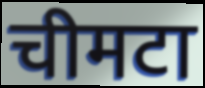
चीमटा